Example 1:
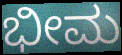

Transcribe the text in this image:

ಭೀಮ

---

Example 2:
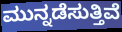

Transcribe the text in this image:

ಮುನ್ನಡೆಸುತ್ತಿವೆ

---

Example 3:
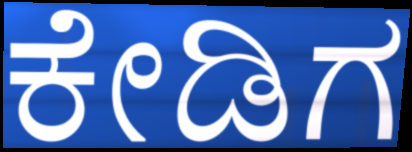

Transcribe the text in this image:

ಕೇಡಿಗ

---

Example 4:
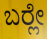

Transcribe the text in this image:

ಬರ್‍ಲೇ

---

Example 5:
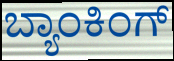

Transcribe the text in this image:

ಬ್ಯಾಂಕಿಂಗ್